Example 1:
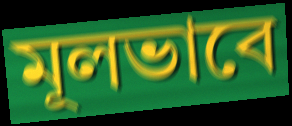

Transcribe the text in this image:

মূলভাবে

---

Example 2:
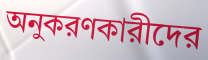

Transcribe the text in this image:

অনুকরণকারীদের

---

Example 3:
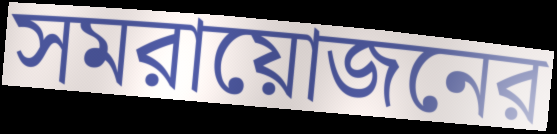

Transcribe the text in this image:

সমরায়োজনের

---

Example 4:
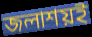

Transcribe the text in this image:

জলাশয়ই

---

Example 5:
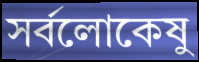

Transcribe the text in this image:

সর্বলোকেষু